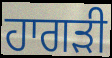
ਹਾਗੜੀ